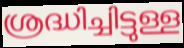
ശ്രദ്ധിച്ചിട്ടുള്ള